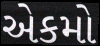
એકમો